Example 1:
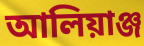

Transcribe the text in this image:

আলিয়াঞ্জ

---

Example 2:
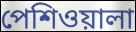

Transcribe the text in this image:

পেশিওয়ালা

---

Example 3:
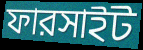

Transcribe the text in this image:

ফারসাইট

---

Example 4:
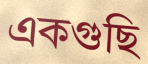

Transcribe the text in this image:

একগুছি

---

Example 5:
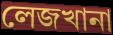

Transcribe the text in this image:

লেজখানা